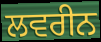
ਲਵਰੀਨ